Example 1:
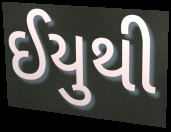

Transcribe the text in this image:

ઈયુથી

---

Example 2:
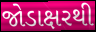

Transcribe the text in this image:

જોડાક્ષરથી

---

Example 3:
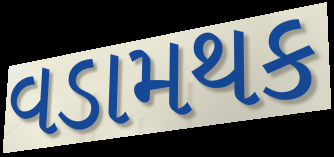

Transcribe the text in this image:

વડામથક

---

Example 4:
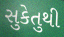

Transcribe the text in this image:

સુકેતુથી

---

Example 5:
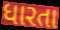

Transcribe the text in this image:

ધારતા